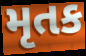
મૃતક